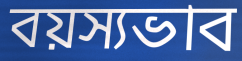
বয়স্যভাব